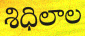
శిధిలాల